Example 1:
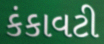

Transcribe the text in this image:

કંકાવટી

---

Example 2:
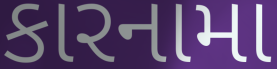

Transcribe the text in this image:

કારનામા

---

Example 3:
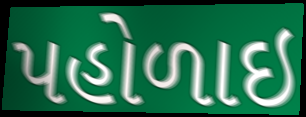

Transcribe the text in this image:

પહોળાઇ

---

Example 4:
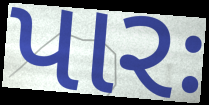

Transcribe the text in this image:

પારઃ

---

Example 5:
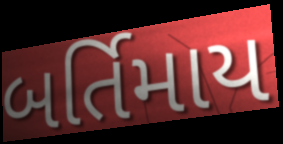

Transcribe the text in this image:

બર્તિમાય